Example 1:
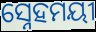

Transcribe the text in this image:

ସ୍ନେହମୟୀ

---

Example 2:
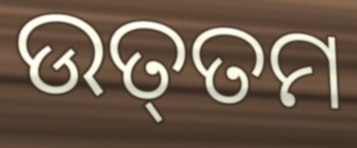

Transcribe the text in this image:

ଉତ୍‌ତମ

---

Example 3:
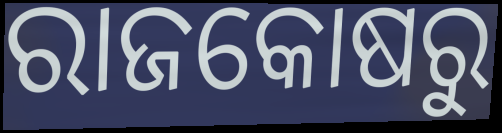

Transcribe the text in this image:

ରାଜକୋଷରୁ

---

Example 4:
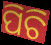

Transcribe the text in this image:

ପିଚି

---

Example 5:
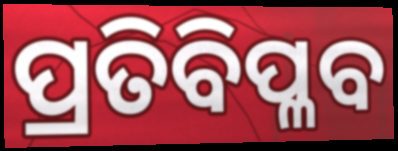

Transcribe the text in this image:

ପ୍ରତିବିପ୍ଳବ